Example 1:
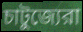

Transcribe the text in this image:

চাটুজ্যেরা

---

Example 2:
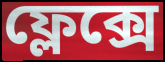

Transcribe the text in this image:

ফ্লেক্সে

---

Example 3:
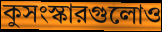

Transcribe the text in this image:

কুসংস্কারগুলোও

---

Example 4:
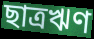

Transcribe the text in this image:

ছাত্রঋণ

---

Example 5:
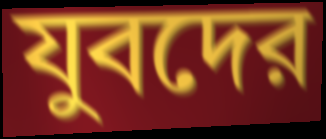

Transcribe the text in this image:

যুবদের